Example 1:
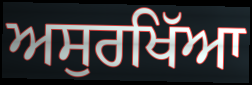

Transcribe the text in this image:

ਅਸੁਰਖਿੱਆ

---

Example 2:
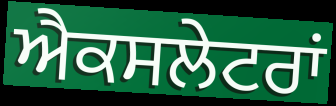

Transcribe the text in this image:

ਐਕਸਲੇਟਰਾਂ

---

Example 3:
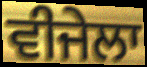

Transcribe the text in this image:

ਵੀਜੇਲਾ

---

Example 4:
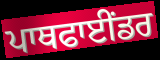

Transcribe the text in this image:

ਪਾਥਫਾਈਂਡਰ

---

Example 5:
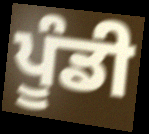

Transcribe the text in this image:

ਪੂੰਡੀ